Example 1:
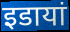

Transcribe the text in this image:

इडायां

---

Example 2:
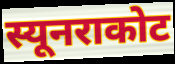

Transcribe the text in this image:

स्यूनराकोट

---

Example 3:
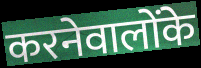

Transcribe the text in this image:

करनेवालोंके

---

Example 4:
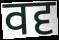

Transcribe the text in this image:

वदृ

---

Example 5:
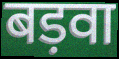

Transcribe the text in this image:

बड़वा